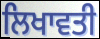
ਲਿਖਾਵਤੀ